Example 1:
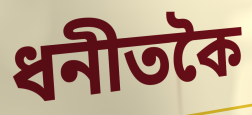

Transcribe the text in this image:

ধনীতকৈ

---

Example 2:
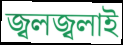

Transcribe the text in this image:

জ্বলজ্বলাই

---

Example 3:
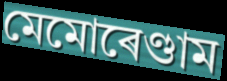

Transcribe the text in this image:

মেমোৰেণ্ডাম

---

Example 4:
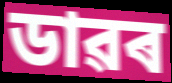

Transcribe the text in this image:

ডাৱৰ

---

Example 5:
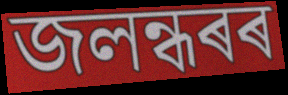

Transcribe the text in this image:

জলন্ধৰৰ